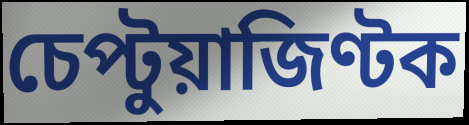
চেপ্টুয়াজিণ্টক